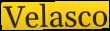
Velasco